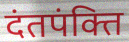
दंतपंक्ति